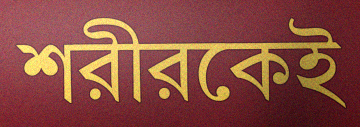
শরীরকেই